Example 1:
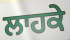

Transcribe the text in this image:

ਲਾਹਕੇ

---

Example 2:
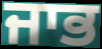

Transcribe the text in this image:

ਜਾਭ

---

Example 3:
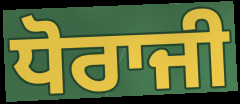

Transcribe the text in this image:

ਧੋਰਾਜੀ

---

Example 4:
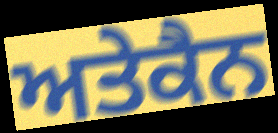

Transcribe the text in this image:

ਅਤੇਕੈਨ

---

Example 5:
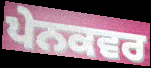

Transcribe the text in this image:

ਪੇਨਕਵਰ